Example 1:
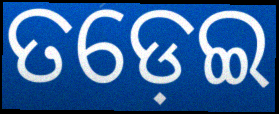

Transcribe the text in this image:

ତଡ଼େଇ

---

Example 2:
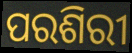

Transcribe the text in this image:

ପରଶିରୀ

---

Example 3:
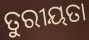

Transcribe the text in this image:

ତୁରୀୟତା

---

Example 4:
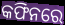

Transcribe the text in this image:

କଫିନରେ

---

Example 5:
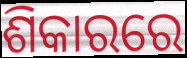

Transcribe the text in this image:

ଶିକାରରେ